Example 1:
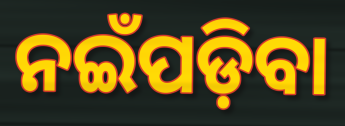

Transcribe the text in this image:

ନଇଁପଡ଼ିବା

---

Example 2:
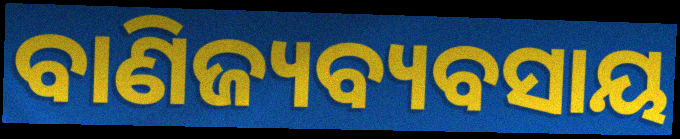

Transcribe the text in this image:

ବାଣିଜ୍ୟବ୍ୟବସାୟ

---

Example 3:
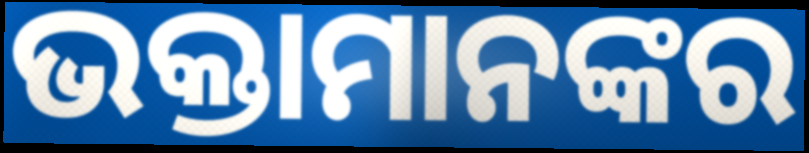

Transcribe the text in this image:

ଭକ୍ତାମାନଙ୍କର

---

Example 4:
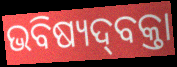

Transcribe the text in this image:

ଭବିଷ୍ୟଦ୍‌ବକ୍ତା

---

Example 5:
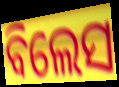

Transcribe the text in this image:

ବିଲେସ